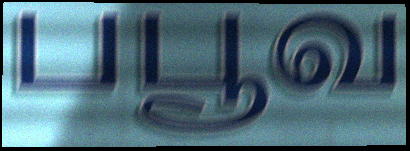
பபூவ